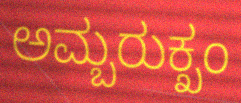
ಅಮ್ಬರುಕ್ಖಂ